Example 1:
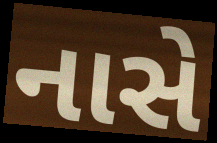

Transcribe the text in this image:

નાસે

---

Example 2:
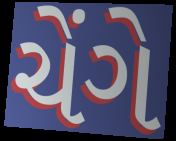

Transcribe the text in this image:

ચેંગે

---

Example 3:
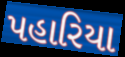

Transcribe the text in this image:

પહારિયા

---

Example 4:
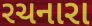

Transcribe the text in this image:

રચનારા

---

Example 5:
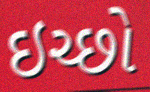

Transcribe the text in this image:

ઇચ્છો